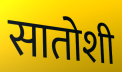
सातोशी